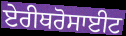
ਏਰੀਥਰੋਸਾਈਟ